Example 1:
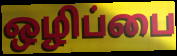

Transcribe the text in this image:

ஒழிப்பை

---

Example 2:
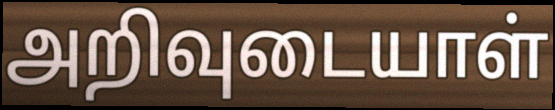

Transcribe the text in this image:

அறிவுடையாள்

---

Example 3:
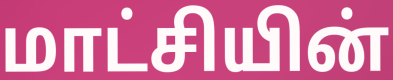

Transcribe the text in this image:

மாட்சியின்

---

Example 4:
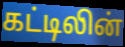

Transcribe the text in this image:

கட்டிலின்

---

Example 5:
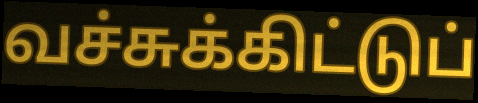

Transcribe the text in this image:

வச்சுக்கிட்டுப்